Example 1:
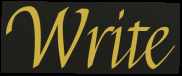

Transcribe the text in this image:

Write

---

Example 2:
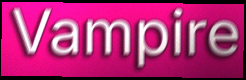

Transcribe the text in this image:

Vampire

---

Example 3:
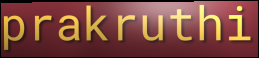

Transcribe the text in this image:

prakruthi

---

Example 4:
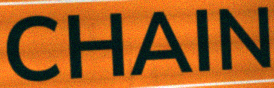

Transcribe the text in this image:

CHAIN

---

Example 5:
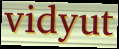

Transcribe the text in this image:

vidyut